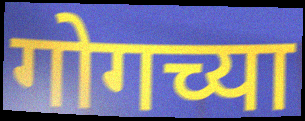
गोगच्या